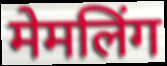
मेमलिंग